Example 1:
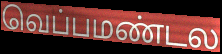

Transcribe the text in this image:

வெப்பமண்டல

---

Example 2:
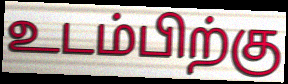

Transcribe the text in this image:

உடம்பிற்கு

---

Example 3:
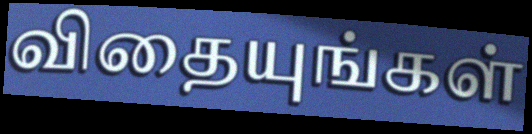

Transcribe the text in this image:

விதையுங்கள்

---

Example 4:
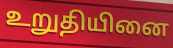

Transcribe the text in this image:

உறுதியினை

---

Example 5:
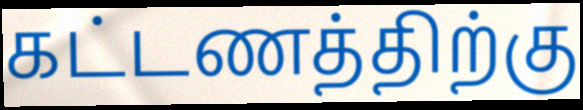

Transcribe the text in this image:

கட்டணத்திற்கு